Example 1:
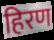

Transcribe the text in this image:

हिरण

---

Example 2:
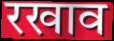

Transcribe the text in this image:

रखाव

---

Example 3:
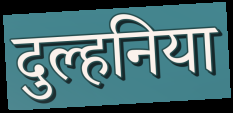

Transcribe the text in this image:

दुल्हनिया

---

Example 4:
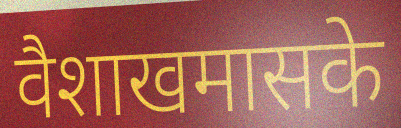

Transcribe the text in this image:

वैशाखमासके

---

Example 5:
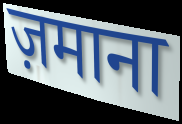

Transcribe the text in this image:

ज़माना